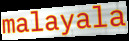
malayala